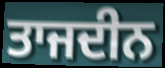
ਤਾਜਦੀਨ